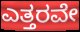
ಎತ್ತರವೇ